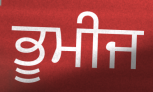
ਭੂਮੀਜ